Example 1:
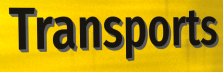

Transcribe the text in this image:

Transports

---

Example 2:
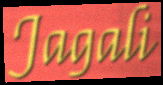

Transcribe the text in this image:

Jagali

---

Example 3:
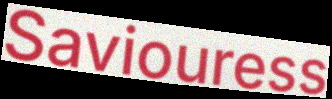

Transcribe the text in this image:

Saviouress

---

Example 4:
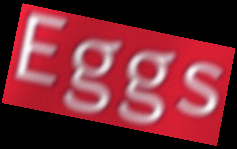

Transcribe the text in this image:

Eggs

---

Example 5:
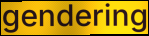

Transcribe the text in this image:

gendering